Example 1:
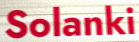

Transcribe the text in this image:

Solanki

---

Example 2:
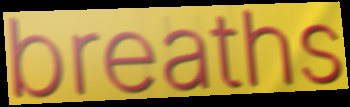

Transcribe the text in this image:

breaths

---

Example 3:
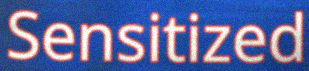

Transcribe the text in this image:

Sensitized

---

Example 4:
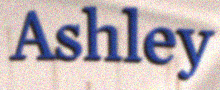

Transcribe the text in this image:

Ashley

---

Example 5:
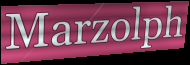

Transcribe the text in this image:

Marzolph